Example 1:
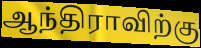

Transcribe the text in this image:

ஆந்திராவிற்கு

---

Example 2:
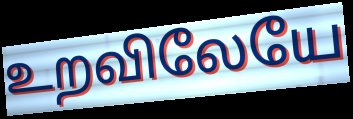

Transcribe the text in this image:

உறவிலேயே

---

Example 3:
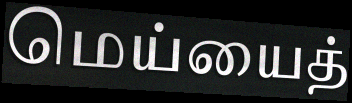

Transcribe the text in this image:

மெய்யைத்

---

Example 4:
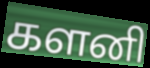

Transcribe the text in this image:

களனி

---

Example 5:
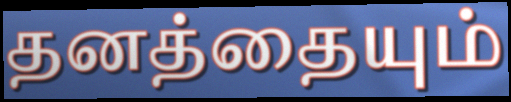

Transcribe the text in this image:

தனத்தையும்